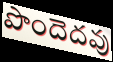
పొందెదవు